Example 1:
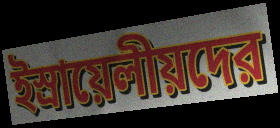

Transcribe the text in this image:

ইস্রায়েলীয়দের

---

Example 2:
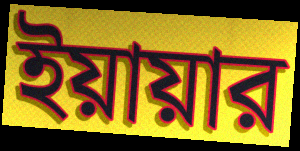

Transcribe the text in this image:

ইয়ায়ার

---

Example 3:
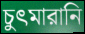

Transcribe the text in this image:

চুৎমারানি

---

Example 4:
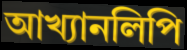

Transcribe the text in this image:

আখ্যানলিপি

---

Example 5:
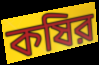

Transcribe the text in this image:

কষির